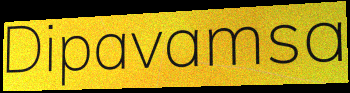
Dipavamsa